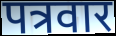
पत्रवार